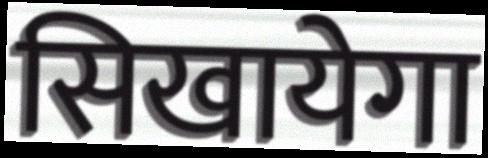
सिखायेगा